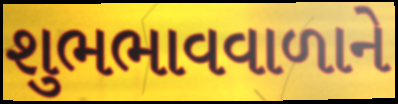
શુભભાવવાળાને